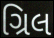
ગ્રિલ